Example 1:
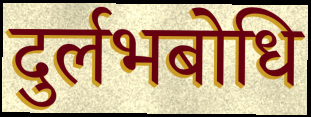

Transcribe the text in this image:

दुर्लभबोधि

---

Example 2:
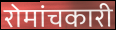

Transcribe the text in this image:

रोमांचकारी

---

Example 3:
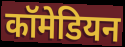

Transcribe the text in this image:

कॉमेडियन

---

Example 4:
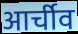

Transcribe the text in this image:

आर्चीव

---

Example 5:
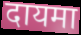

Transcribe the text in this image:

दायमा